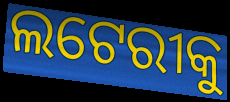
ଲଟେରୀକୁ